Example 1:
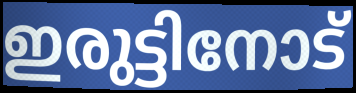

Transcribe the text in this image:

ഇരുട്ടിനോട്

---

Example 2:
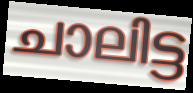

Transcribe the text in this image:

ചാലിട്ട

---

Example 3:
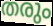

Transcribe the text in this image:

തരും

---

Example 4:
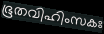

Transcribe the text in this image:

ഭൂതവിഹിംസകഃ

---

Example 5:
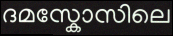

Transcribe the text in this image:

ദമസ്കോസിലെ